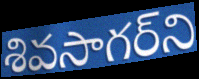
శివసాగర్‌ని